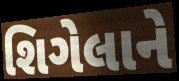
શિગેલાને